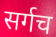
सर्गच